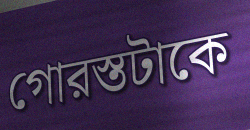
গোরস্তটাকে